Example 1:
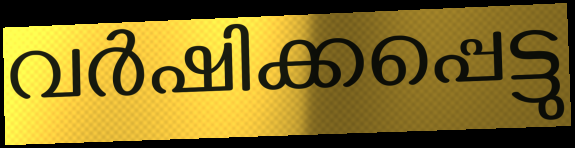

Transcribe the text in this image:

വർഷിക്കപ്പെട്ടു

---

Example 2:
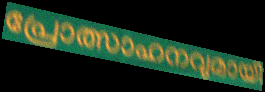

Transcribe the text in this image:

പ്രോത്സാഹനവുമായി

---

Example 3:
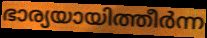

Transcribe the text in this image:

ഭാര്യയായിത്തീർന്ന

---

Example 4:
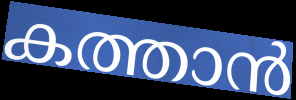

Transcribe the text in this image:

കത്താൻ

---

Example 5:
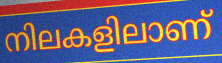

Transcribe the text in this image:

നിലകളിലാണ്